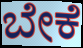
ಬೇಕೆ